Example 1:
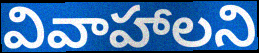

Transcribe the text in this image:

వివాహాలని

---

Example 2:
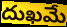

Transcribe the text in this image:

దుఖమే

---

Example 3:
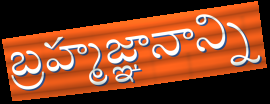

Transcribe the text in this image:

బ్రహ్మజ్ఞానాన్ని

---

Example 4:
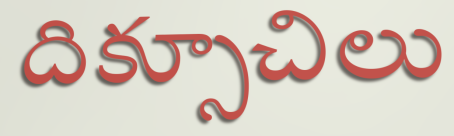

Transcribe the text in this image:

దిక్సూచిలు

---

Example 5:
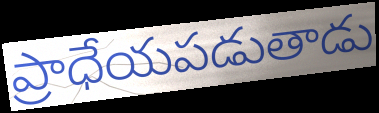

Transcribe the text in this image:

ప్రాధేయపడుతాడు